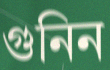
গুনিন